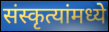
संस्कृत्यांमध्ये